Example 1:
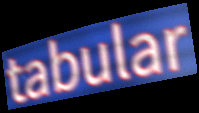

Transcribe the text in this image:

tabular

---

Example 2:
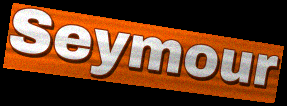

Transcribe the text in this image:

Seymour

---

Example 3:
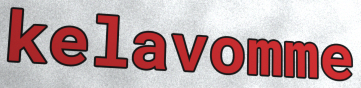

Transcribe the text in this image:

kelavomme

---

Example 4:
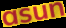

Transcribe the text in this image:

asun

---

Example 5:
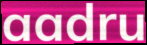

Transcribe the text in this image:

aadru